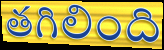
తగిలింది